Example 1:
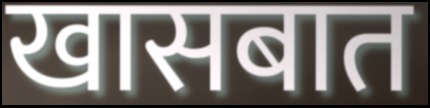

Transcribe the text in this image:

खासबात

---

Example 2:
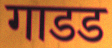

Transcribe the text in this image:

गाडड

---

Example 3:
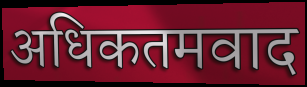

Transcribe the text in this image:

अधिकतमवाद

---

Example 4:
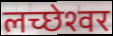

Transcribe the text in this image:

लच्छेश्वर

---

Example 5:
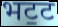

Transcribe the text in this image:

भट॒ट